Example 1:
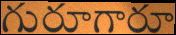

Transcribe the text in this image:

గురూగారూ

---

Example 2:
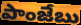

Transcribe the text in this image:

పాంజేబు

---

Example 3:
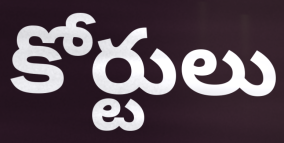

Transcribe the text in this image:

కోర్టులు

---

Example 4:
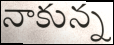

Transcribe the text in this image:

నాకున్న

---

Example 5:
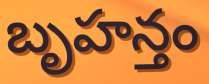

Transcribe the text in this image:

బృహన్తం